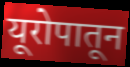
यूरोपातून